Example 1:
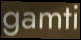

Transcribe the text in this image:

gamti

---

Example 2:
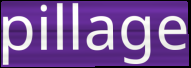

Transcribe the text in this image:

pillage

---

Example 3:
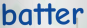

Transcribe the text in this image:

batter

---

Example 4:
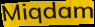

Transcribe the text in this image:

Miqdam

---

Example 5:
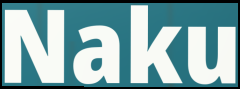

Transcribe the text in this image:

Naku